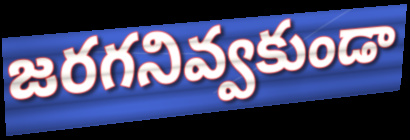
జరగనివ్వకుండా